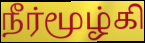
நீர்மூழ்கி